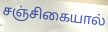
சஞ்சிகையால்